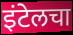
इंटेलचा